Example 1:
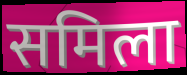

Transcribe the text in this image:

समिला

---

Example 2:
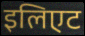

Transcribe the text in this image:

इलिएट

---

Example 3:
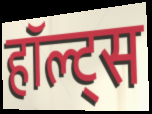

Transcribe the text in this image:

हॉल्ट्स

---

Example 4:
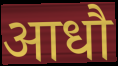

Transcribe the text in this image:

आधौ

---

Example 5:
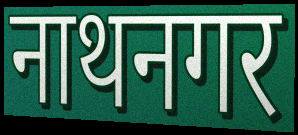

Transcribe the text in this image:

नाथनगर